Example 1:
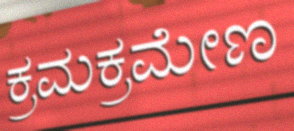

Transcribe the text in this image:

ಕ್ರಮಕ್ರಮೇಣ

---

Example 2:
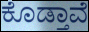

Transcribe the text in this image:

ಕೊಡ್ತಾವೆ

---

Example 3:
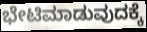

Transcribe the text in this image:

ಭೇಟಿಮಾಡುವುದಕ್ಕೆ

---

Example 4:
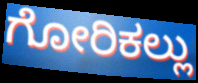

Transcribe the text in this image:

ಗೋರಿಕಲ್ಲು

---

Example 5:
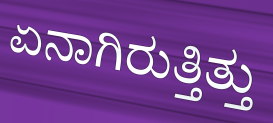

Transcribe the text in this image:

ಏನಾಗಿರುತ್ತಿತ್ತು